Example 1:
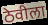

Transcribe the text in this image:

ठेवीला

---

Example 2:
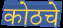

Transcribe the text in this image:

कोठचे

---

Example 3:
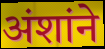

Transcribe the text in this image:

अंशांने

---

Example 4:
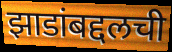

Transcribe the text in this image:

झाडांबद्दलची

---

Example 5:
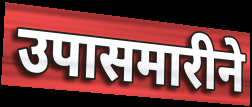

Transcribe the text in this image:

उपासमारीने